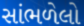
સાંભળેલો